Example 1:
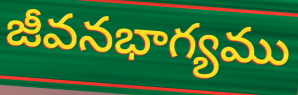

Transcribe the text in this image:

జీవనభాగ్యము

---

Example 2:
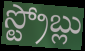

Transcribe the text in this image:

స్ట్రోబ్లు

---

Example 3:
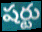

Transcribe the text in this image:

షర్టు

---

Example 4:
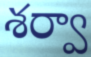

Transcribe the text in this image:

శర్వా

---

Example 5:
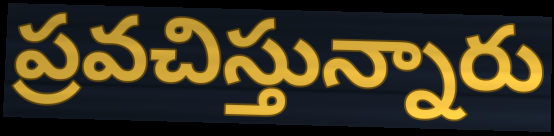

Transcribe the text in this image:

ప్రవచిస్తున్నారు